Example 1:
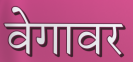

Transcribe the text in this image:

वेगावर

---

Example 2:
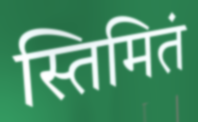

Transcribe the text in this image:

स्तिमितं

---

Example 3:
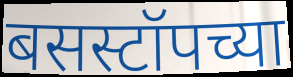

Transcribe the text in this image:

बसस्टॉपच्या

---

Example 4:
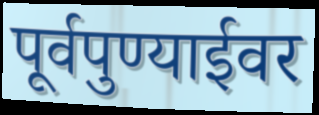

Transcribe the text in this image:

पूर्वपुण्याईवर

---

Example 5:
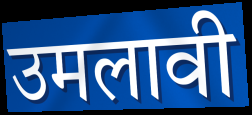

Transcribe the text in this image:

उमलावी